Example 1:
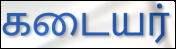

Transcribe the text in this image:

கடையர்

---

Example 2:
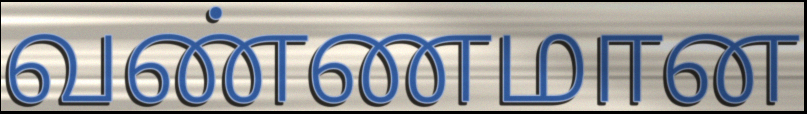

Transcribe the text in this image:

வண்ணமான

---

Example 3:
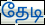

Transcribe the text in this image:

தேடி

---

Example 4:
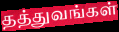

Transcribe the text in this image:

தத்துவங்கள்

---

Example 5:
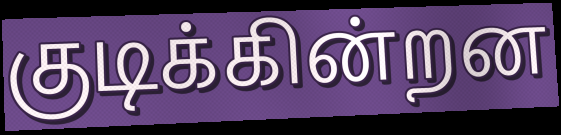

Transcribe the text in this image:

குடிக்கின்றன